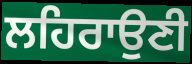
ਲਹਿਰਾਉਣੀ